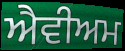
ਐਵੀਅਮ